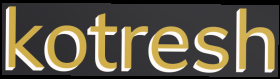
kotresh